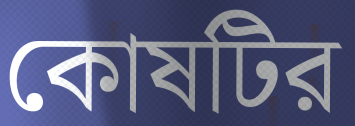
কোষটির